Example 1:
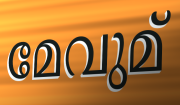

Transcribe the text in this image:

മേവുമ്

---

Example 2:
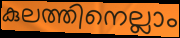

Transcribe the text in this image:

കുലത്തിനെല്ലാം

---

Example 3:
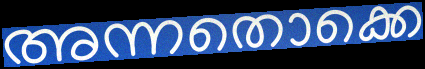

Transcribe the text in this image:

അന്നതൊക്കെ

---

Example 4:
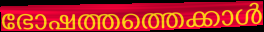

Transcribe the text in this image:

ഭോഷത്തത്തെക്കാൾ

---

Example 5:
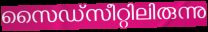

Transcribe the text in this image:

സൈഡ്സീറ്റിലിരുന്നു